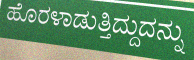
ಹೊರಳಾಡುತ್ತಿದ್ದುದನ್ನು